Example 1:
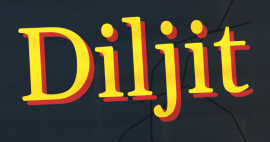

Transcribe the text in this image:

Diljit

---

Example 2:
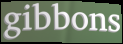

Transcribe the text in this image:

gibbons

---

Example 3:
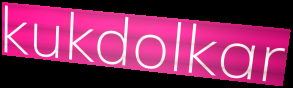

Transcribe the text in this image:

kukdolkar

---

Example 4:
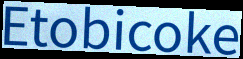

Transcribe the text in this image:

Etobicoke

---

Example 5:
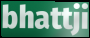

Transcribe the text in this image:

bhattji